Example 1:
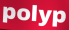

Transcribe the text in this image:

polyp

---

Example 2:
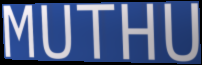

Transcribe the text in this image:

MUTHU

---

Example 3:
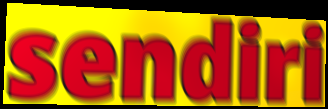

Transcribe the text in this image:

sendiri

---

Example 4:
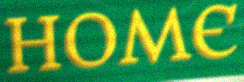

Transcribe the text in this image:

HOME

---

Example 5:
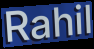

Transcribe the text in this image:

Rahil